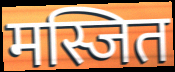
मस्जित